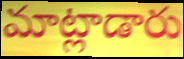
మాట్లాడారు